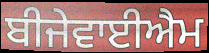
ਬੀਜੇਵਾਈਐਮ